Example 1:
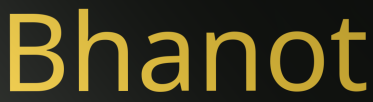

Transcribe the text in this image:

Bhanot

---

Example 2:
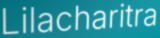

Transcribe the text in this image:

Lilacharitra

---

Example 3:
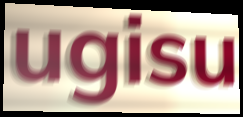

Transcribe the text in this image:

ugisu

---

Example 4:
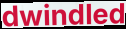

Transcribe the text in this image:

dwindled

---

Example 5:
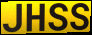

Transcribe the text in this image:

JHSS